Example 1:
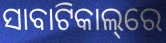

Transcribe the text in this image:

ସାବାଟିକାଲ୍‌ରେ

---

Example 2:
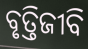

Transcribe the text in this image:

ବୃତ୍ତିଜୀବି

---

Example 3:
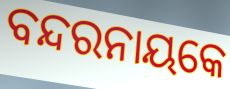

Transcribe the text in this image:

ବନ୍ଦରନାୟକେ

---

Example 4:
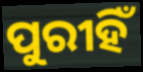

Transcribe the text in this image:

ପୁରୀହିଁ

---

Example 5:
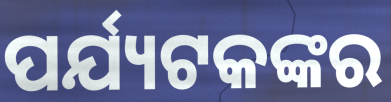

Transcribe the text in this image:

ପର୍ଯ୍ୟଟକଙ୍କର